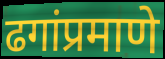
ढगांप्रमाणे